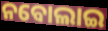
ନବୋଲାଇ